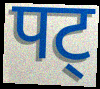
पट्